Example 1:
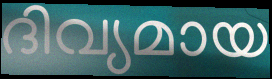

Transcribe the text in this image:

ദിവ്യമായ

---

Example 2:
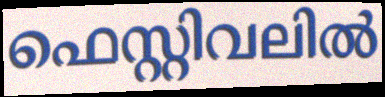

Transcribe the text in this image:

ഫെസ്റ്റിവലിൽ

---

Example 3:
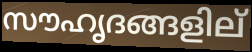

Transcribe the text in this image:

സൗഹൃദങ്ങളില്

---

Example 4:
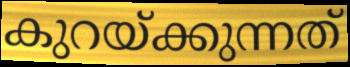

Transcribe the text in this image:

കുറയ്ക്കുന്നത്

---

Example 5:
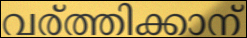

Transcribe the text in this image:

വര്ത്തിക്കാന്